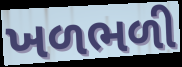
ખળભળી